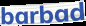
barbad